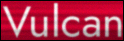
Vulcan